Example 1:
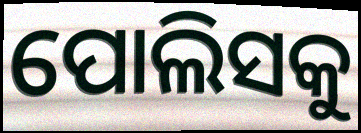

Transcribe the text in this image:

ପୋଲିସକୁ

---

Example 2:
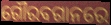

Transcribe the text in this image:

ଗୌରବଗାନରେ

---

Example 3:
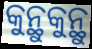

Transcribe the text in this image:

କୁନ୍ଥୁକୁନ୍ଥୁ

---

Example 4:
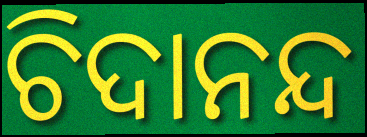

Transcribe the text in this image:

ଚିଦାନନ୍ଦ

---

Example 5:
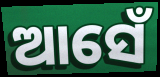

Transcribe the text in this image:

ଆସେଁ